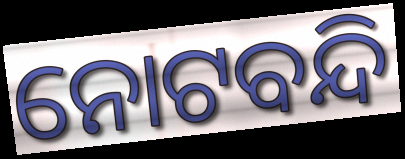
ନୋଟବନ୍ଦି